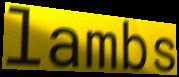
lambs